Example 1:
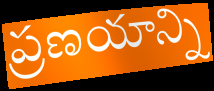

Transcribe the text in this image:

ప్రణయాన్ని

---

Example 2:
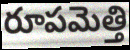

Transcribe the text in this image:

రూపమెత్తి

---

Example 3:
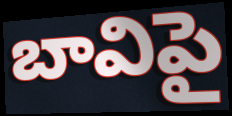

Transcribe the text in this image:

బావిపై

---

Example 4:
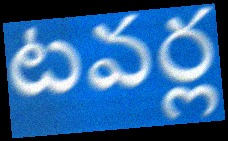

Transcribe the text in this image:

టవర్ల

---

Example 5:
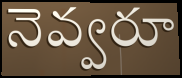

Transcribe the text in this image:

నెవ్వరూ